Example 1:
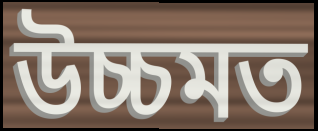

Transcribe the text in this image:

উচ্চমত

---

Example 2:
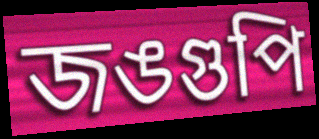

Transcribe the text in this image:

জঙগুপি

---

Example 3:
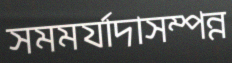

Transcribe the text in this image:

সমমর্যাদাসম্পন্ন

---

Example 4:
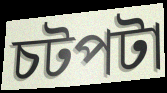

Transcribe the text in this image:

চটপটা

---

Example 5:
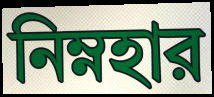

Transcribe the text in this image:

নিম্নহার